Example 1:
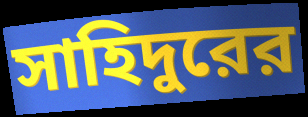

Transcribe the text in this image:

সাহিদুরের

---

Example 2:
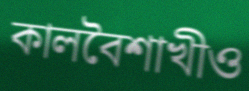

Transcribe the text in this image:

কালবৈশাখীও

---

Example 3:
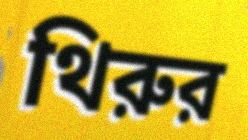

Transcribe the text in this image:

থিরুর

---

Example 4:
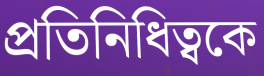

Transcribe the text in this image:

প্রতিনিধিত্বকে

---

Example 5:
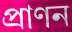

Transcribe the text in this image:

প্রাণন